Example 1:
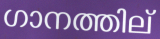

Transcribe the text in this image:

ഗാനത്തില്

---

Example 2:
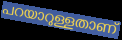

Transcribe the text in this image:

പറയാറുള്ളതാണ്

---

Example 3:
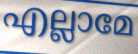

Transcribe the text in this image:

എല്ലാമേ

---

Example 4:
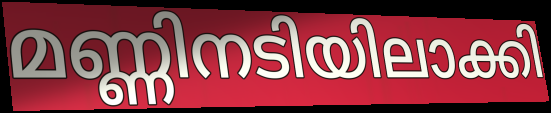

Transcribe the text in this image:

മണ്ണിനടിയിലാക്കി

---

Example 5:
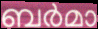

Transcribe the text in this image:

ബർമാ